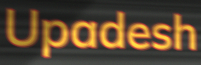
Upadesh